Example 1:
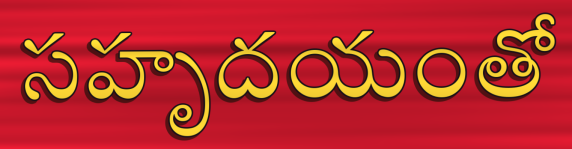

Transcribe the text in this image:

సహృదయంతో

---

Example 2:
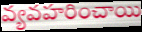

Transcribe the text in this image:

వ్యవహరించాయి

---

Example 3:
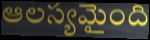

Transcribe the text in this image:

ఆలస్యమైంది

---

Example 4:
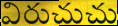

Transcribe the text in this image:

విరుచుచు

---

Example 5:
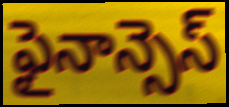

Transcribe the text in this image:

ఫైనాన్సెస్